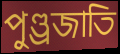
পুণ্ড্রজাতি